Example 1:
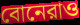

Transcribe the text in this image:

বোনেরাও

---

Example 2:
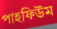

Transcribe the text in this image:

পাহফিউম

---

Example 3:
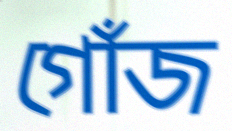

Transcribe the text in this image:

গোঁজ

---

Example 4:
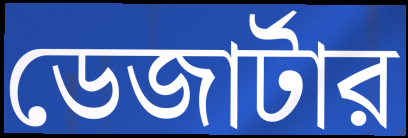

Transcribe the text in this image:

ডেজার্টার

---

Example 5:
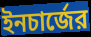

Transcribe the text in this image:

ইনচার্জের